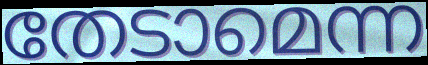
തേടാമെന്ന